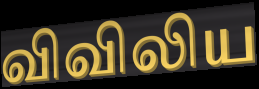
விவிலிய